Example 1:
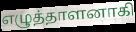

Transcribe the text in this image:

எழுத்தாளனாகி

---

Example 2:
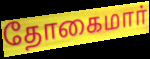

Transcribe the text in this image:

தோகைமார்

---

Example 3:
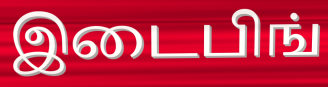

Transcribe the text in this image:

இடைபிங்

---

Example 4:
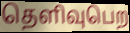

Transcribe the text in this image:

தெளிவுபெற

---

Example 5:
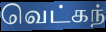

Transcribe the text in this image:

வெட்கந்